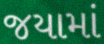
જયામાં